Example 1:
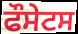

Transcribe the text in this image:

ਫੌਸੇਟਸ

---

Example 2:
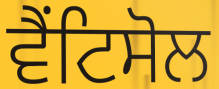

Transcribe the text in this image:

ਵੈਂਟਿਸੋਲ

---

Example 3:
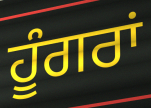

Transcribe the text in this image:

ਹੂੰਗਰਾਂ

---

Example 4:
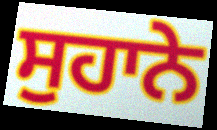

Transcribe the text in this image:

ਸੁਹਾਨੇ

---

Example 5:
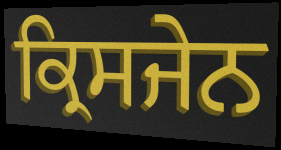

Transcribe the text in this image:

ਕ੍ਰਿਸਜੇਨ